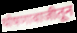
घोषणाबाजीतून